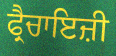
ਫ੍ਰੈਚਾਇਜ਼ੀ